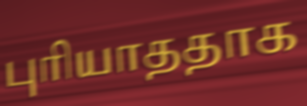
புரியாததாக